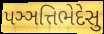
પઞ્ઞત્તિભેદેસુ